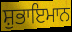
ਸ਼ੁਭਾਇਮਾਨ